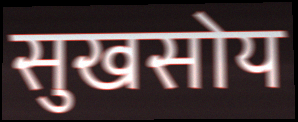
सुखसोय